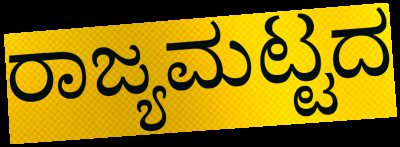
ರಾಜ್ಯಮಟ್ಟದ